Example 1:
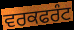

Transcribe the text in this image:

ਵਰਕਫਰੰਟ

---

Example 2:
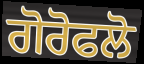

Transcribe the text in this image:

ਗੋਰੋਫਲੋ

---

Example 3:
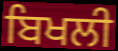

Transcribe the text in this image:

ਬਿਖਲੀ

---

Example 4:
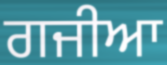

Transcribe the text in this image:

ਗਜੀਆ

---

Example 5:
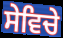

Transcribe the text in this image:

ਸੇਵਿਚੇ